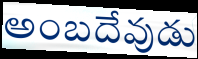
అంబదేవుడు